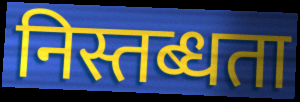
निस्तब्धता